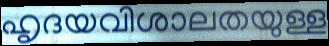
ഹൃദയവിശാലതയുള്ള